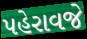
પહેરાવજે